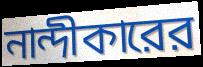
নান্দীকারের